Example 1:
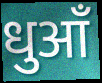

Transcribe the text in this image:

धुआँ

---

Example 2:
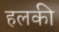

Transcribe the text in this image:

हलकी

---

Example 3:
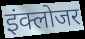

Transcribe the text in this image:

इंक्लोजर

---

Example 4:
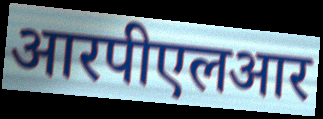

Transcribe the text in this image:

आरपीएलआर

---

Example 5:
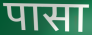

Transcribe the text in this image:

पासा